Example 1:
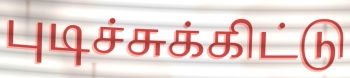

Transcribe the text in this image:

புடிச்சுக்கிட்டு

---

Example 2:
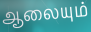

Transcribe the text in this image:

ஆலையும்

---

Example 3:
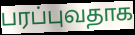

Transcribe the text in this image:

பரப்புவதாக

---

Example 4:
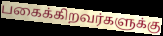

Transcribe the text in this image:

பகைக்கிறவர்களுக்கு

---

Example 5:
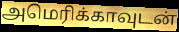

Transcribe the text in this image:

அமெரிக்காவுடன்